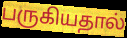
பருகியதால்